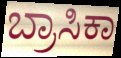
ಬ್ರಾಸಿಕಾ